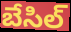
బేసిల్